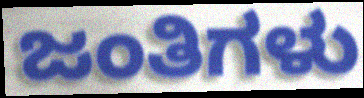
ಜಂತಿಗಳು